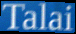
Talai